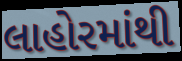
લાહોરમાંથી